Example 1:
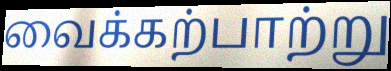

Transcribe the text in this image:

வைக்கற்பாற்று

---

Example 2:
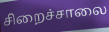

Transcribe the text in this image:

சிறைச்சாலை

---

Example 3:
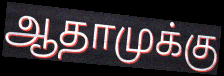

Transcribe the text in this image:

ஆதாமுக்கு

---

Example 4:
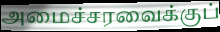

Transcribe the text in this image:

அமைச்சரவைக்குப்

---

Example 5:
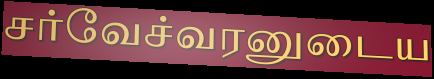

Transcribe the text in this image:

சர்வேச்வரனுடைய